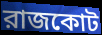
রাজকোট